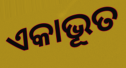
ଏକାଭୂତ